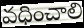
వధించాలి